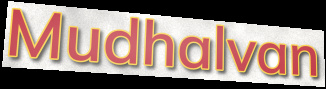
Mudhalvan